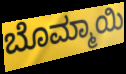
ಬೊಮ್ಮಾಯಿ